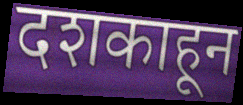
दशकाहून